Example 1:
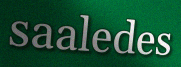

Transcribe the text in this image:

saaledes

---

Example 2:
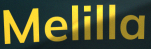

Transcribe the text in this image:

Melilla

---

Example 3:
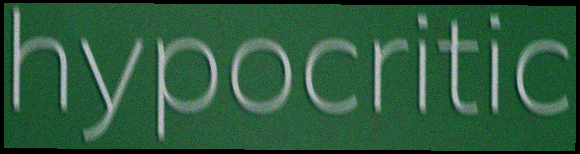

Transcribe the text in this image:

hypocritic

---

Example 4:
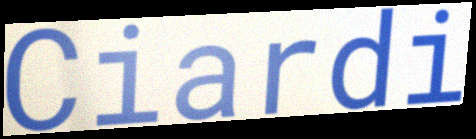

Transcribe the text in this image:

Ciardi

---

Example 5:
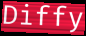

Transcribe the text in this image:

Diffy